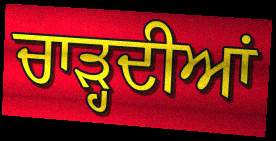
ਚਾੜ੍ਹਦੀਆਂ